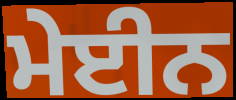
ਮੇਈਨ